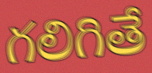
గలిగితే